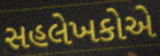
સહલેખકોએ